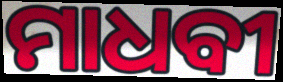
ମାଧବୀ